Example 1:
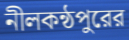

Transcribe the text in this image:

নীলকন্ঠপুরের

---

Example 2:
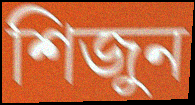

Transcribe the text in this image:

শিজুন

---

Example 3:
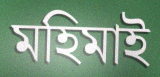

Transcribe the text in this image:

মহিমাই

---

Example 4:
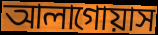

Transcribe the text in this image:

আলাগোয়াস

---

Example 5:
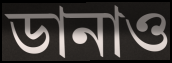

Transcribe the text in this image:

ডানাও